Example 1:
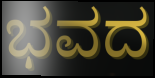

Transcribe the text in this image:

ಭವದ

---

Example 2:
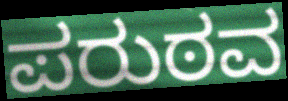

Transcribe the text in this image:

ಪರುಠವ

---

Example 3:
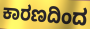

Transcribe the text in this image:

ಕಾರಣದಿಂದ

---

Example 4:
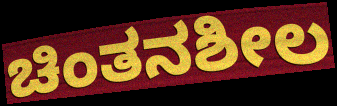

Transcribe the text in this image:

ಚಿಂತನಶೀಲ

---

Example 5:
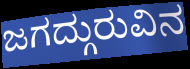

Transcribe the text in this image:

ಜಗದ್ಗುರುವಿನ